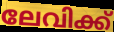
ലേവിക്ക്